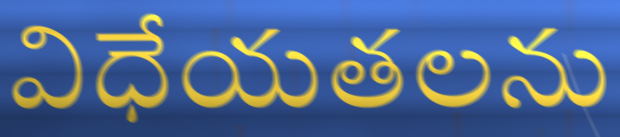
విధేయతలను